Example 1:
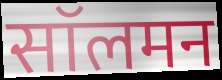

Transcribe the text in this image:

सॉलमन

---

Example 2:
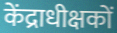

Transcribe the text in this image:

केंद्राधीक्षकों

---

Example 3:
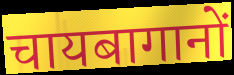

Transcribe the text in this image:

चायबागानों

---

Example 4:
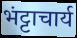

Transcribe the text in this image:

भंट्टाचार्य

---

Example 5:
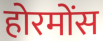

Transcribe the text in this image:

होरमोंस